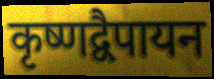
कृष्णद्वैपायन